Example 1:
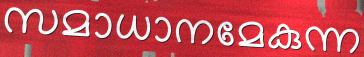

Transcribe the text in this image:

സമാധാനമേകുന്ന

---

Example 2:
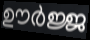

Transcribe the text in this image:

ഊർജ്ജ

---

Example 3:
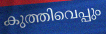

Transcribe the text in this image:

കുത്തിവെപ്പും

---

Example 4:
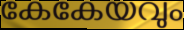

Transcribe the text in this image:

കേകേയവും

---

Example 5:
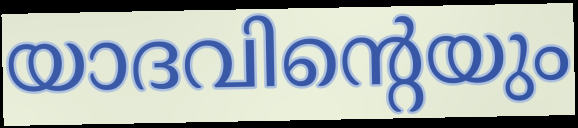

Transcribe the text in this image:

യാദവിന്റെയും